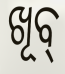
ଖୂବ୍